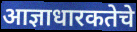
आज्ञाधारकतेचे